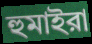
হুমাইরা